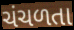
ચંચળતા